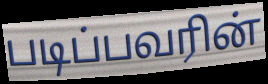
படிப்பவரின்